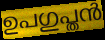
ഉപഗുപ്തൻ